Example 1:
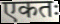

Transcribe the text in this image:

एकतः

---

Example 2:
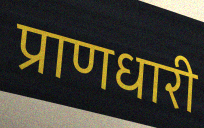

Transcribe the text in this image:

प्राणधारी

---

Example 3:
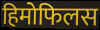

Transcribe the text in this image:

हिमोफिलस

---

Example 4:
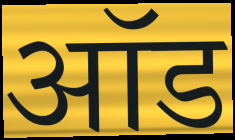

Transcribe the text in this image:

ऑड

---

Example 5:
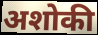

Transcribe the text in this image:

अशोकी